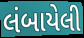
લંબાયેલી